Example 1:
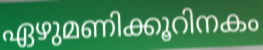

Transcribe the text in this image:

ഏഴുമണിക്കൂറിനകം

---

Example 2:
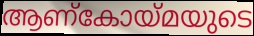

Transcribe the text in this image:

ആണ്കോയ്മയുടെ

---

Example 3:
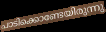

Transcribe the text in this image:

പാടിക്കൊണ്ടേയിരുന്നു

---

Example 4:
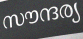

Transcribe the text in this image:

സൗന്ദര്യ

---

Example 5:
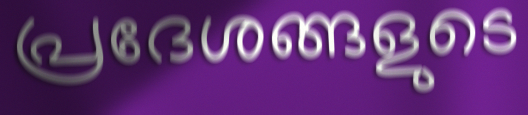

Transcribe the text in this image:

പ്രദേശങ്ങളുടെ